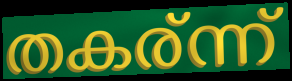
തകര്ന്ന്